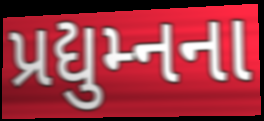
પ્રદ્યુમ્નના